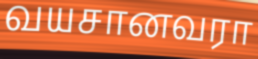
வயசானவரா